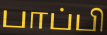
பாப்பி